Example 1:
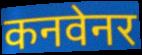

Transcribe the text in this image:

कनवेनर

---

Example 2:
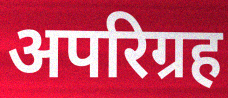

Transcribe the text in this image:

अपरिग्रह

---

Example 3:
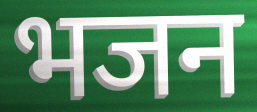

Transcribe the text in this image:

भजन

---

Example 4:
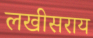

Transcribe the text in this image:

लखीसराय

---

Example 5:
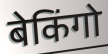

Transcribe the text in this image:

बेकिंगो